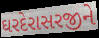
ઘરદેરાસરજીને